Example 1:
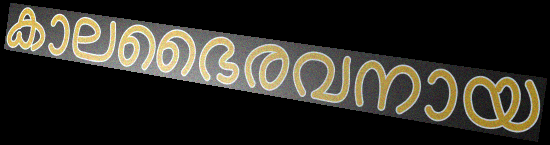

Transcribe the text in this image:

കാലഭൈരവനായ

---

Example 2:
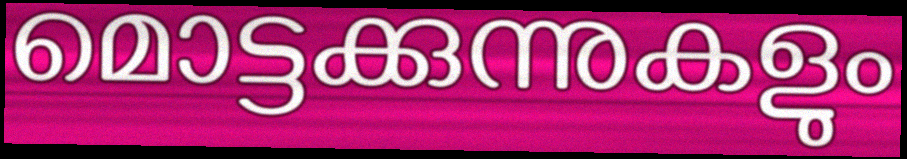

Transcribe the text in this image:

മൊട്ടക്കുന്നുകളും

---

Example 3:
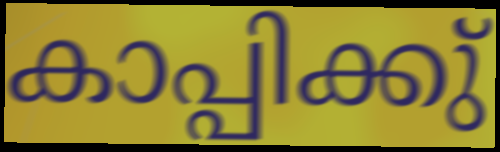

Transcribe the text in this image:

കാപ്പിക്കു്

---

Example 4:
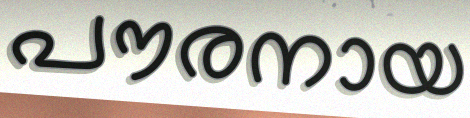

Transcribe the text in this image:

പൗരനായ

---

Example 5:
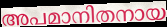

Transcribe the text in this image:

അപമാനിതനായ